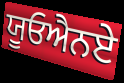
ਯੂਓਐਨਏ